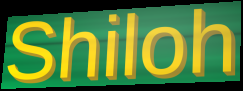
Shiloh